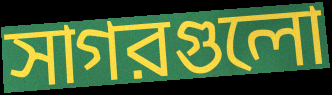
সাগরগুলো